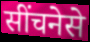
सींचनेसे